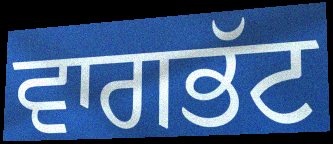
ਵਾਗਭੱਟ